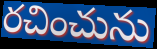
రచించును